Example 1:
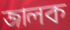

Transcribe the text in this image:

জালক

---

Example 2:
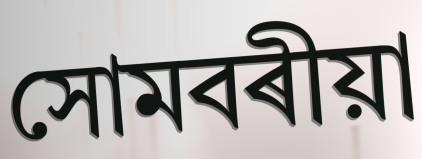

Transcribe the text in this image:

সোমবৰীয়া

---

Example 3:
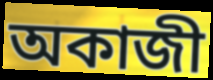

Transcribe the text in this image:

অকাজী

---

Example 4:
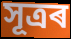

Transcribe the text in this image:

সূত্ৰৰ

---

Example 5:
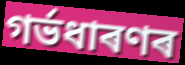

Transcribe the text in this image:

গৰ্ভধাৰণৰ